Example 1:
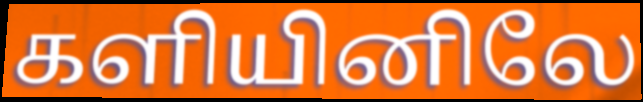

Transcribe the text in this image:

களியினிலே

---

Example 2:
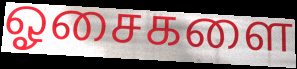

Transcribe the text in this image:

ஓசைகளை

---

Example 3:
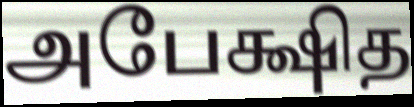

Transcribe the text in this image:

அபேக்ஷித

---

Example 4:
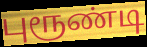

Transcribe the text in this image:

புரூண்டி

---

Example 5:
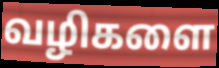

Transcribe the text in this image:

வழிகளை